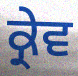
ਕ੍ਰੇਵ